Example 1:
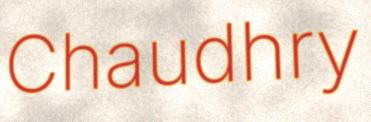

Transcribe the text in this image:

Chaudhry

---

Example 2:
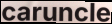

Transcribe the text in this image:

caruncle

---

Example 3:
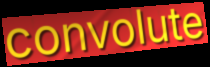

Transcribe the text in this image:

convolute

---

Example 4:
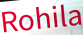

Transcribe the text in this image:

Rohila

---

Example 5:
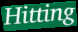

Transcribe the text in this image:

Hitting